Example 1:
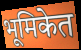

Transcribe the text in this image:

भूमिकेत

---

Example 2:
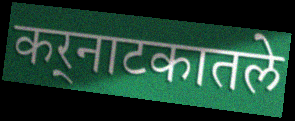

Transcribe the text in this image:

कर्नाटकातले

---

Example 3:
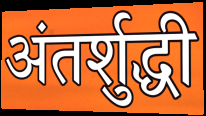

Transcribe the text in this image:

अंतर्शुद्धी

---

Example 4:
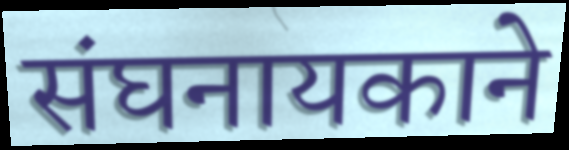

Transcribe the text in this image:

संघनायकाने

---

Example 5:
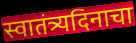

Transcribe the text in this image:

स्वातंत्र्यदिनाचा